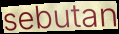
sebutan